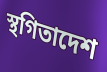
স্থগিতাদেশ